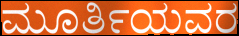
ಮೂರ್ತಿಯವರ